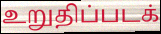
உறுதிப்படக்